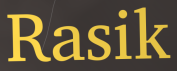
Rasik